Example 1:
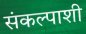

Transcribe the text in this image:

संकल्पाशी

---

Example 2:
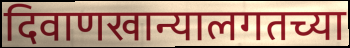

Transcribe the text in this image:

दिवाणखान्यालगतच्या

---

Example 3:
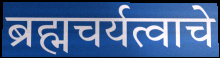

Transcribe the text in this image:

ब्रह्मचर्यत्वाचे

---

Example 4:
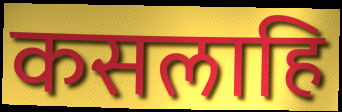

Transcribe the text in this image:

कसलाहि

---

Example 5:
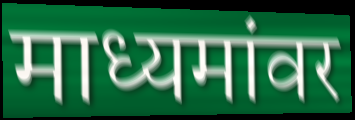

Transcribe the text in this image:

माध्यमांवर